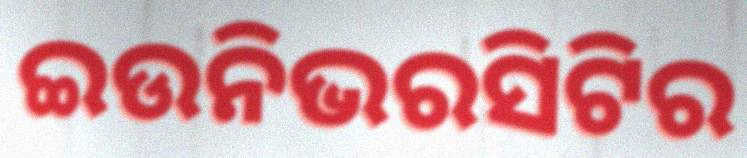
ଇଉନିଭରସିଟିର